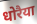
धोरैया